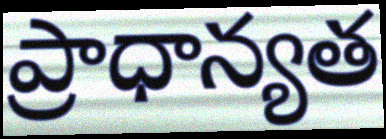
ప్రాధాన్యత